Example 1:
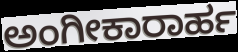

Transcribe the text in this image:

ಅಂಗೀಕಾರಾರ್ಹ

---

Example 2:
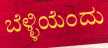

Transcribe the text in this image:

ಬೆಳ್ಳಿಯೆಂದು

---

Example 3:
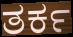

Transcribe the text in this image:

ತರ್ಕ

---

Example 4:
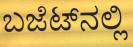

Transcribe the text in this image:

ಬಜೆಟ್‌ನಲ್ಲಿ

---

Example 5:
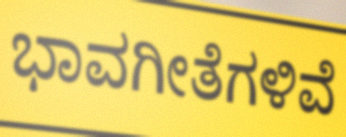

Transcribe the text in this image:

ಭಾವಗೀತೆಗಳಿವೆ